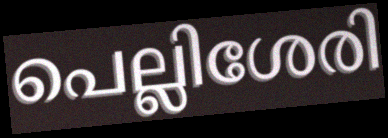
പെല്ലിശേരി